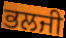
ਭਲਜੀ